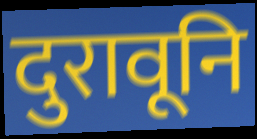
दुरावूनि